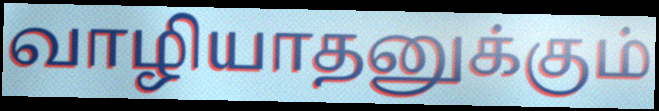
வாழியாதனுக்கும்